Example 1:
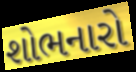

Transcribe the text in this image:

શોભનારો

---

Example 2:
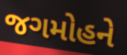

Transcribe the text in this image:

જગમોહને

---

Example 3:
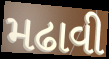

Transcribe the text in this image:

મઢાવી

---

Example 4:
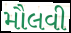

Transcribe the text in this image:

મૌલવી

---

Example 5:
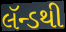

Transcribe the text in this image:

લૅન્ડથી